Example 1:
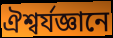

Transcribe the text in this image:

ঐশ্বর্যজ্ঞানে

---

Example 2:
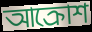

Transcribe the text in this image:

আক্রোশ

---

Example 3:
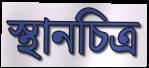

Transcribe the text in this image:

স্থানচিত্র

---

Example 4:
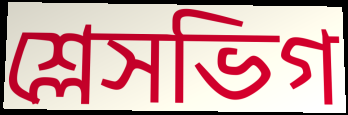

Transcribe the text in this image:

শ্লেসভিগ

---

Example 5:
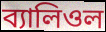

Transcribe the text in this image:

ব্যালিওল